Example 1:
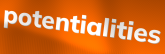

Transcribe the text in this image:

potentialities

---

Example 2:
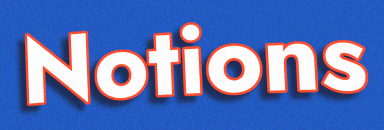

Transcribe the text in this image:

Notions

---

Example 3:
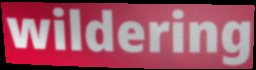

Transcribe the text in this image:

wildering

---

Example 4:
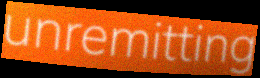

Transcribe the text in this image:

unremitting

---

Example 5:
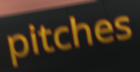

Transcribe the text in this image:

pitches